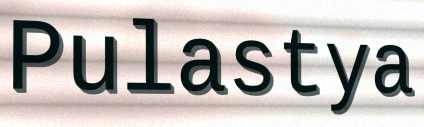
Pulastya